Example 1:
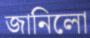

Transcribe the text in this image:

জানিলো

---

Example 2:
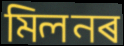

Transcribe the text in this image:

মিলনৰ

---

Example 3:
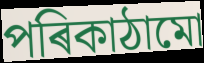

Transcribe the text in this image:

পৰিকাঠামো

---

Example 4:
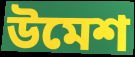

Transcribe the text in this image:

উমেশ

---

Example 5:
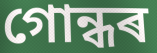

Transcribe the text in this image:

গোন্ধৰ